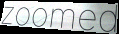
zoomed